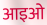
आइओ